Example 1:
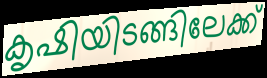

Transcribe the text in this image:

കൃഷിയിടങ്ങിലേക്ക്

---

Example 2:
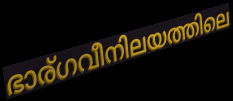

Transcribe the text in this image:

ഭാര്ഗവീനിലയത്തിലെ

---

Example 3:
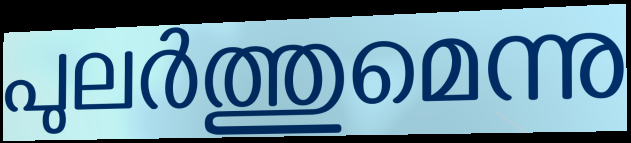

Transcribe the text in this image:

പുലർത്തുമെന്നു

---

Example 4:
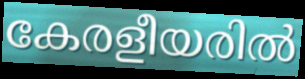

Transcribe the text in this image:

കേരളീയരിൽ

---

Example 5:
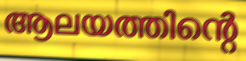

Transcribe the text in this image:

ആലയത്തിന്റെ